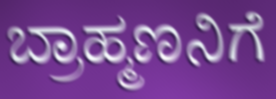
ಬ್ರಾಹ್ಮಣನಿಗೆ